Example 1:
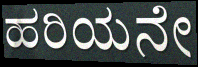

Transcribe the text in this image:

ಹರಿಯನೇ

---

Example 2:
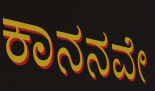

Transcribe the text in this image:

ಕಾನನವೇ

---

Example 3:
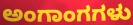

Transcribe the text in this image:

ಅಂಗಾಂಗಗಳು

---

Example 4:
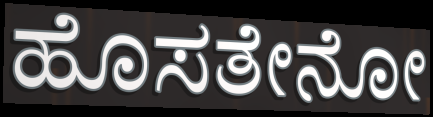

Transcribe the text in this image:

ಹೊಸತೇನೋ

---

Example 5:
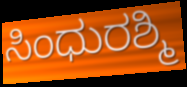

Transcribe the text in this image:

ಸಿಂಧುರಶ್ಮಿ